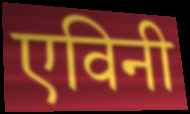
एविनी